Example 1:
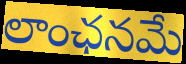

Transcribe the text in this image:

లాంఛనమే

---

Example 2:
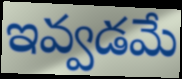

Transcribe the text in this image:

ఇవ్వడమే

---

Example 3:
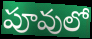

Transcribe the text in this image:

పూవులో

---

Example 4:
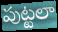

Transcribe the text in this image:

పుట్టలా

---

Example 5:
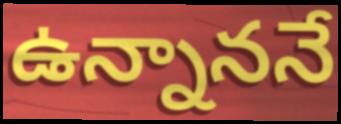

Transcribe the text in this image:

ఉన్నాననే